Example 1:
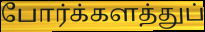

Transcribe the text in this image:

போர்க்களத்துப்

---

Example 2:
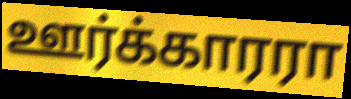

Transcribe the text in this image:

ஊர்க்காரரா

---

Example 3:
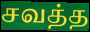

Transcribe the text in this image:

சவத்த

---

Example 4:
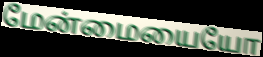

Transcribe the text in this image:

மேன்மையையோ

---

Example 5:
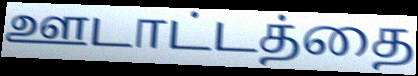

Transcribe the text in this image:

ஊடாட்டத்தை